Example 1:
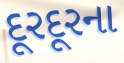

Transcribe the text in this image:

દૂરદૂરના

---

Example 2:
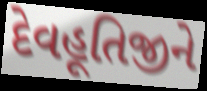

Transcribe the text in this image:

દેવહૂતિજીને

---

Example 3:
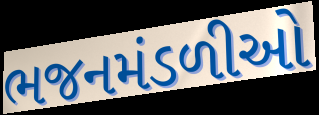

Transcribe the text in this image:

ભજનમંડળીઓ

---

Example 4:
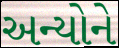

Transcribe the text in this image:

અન્યોને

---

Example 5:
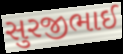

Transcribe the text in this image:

સુરજીભાઈ